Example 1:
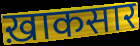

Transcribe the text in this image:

ख़ाकसार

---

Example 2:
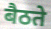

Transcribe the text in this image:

बैठते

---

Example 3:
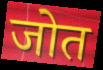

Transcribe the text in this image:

जोत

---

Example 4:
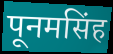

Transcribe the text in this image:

पूनमसिंह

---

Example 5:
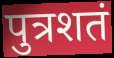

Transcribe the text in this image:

पुत्रशतं